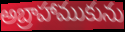
అబ్రాహాముకును